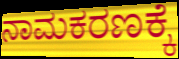
ನಾಮಕರಣಕ್ಕೆ